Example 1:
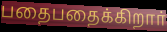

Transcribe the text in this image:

பதைபதைக்கிறார்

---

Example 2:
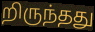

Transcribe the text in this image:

றிருந்தது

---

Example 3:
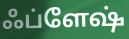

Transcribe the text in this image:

ஃப்ளேஷ்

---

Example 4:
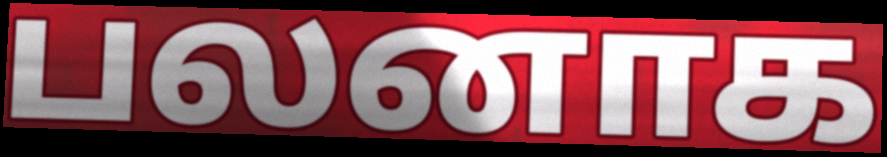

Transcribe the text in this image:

பலனாக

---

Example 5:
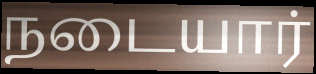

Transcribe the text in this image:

நடையார்